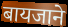
बायजाने